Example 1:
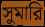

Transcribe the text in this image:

সুমারি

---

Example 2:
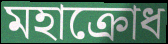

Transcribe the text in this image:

মহাক্রোধ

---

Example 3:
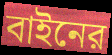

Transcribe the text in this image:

বাইনের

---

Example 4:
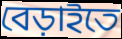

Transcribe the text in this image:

বেড়াইতে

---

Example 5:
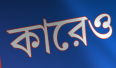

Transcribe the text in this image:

কারেও